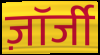
ज़ॉर्जी